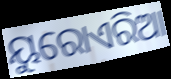
ୟୁରୋଏରିଆ